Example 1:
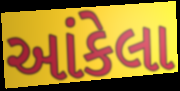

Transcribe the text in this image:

આંકેલા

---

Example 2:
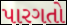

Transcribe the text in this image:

પારગતો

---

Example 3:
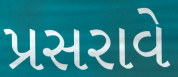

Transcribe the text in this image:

પ્રસરાવે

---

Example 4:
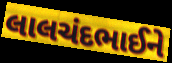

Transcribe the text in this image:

લાલચંદભાઈને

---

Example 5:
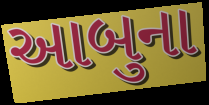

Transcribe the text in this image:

આબુના